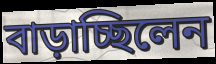
বাড়াচ্ছিলেন